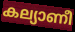
കല്യാണീ